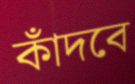
কাঁদবে